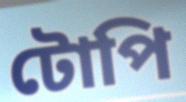
টোপি